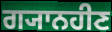
ਗ੍ਯਾਨਹੀਣ